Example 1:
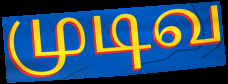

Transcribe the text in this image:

முடிவ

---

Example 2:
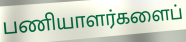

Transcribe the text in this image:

பணியாளர்களைப்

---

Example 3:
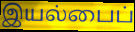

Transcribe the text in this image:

இயல்பைப்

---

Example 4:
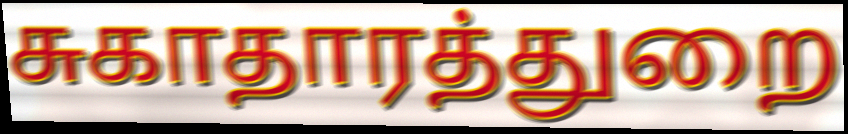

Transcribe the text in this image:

சுகாதாரத்துறை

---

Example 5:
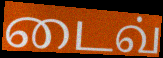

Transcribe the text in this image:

டைவ்